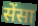
सेंसा